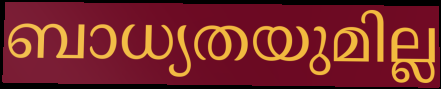
ബാധ്യതയുമില്ല